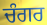
ਚੰਗਰ